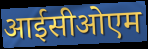
आईसीओएम